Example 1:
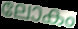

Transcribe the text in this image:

ലോകം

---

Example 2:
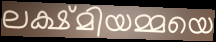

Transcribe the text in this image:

ലക്ഷ്മിയമ്മയെ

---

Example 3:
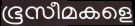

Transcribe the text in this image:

ഭൂസീമകളെ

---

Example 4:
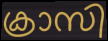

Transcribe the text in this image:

ക്രാസി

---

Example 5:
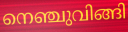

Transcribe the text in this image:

നെഞ്ചുവിങ്ങി